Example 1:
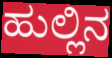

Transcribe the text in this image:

ಹುಲ್ಲಿನ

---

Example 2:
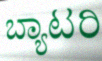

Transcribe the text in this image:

ಬ್ಯಾಟರಿ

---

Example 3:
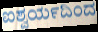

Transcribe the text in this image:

ಐಶ್ವರ್ಯದಿಂದ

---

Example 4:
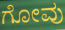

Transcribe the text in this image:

ಗೋವು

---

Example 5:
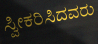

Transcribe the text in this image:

ಸ್ವೀಕರಿಸಿದವರು